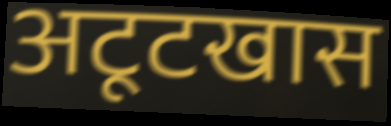
अटूटखास